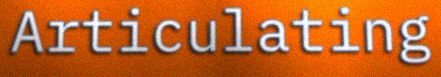
Articulating